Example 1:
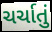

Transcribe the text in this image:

ચર્ચાતું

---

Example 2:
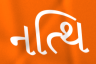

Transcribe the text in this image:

નત્થિ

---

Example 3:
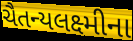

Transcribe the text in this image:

ચૈતન્યલક્ષ્મીના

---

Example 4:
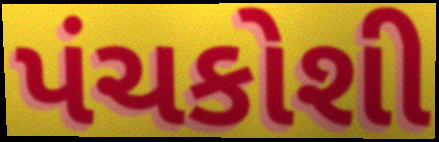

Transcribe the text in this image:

પંચકોશી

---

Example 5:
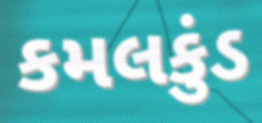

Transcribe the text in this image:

કમલકુંડ